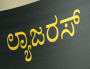
ಲ್ಯಾಜರಸ್